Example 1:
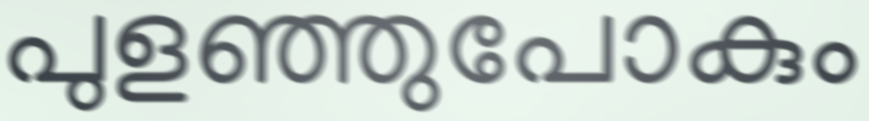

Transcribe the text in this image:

പുളഞ്ഞുപോകും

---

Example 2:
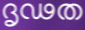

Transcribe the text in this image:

ദൃഢത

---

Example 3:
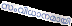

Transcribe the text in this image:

സംവിധാനമായി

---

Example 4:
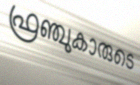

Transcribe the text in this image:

ഫ്രഞ്ചുകാരുടെ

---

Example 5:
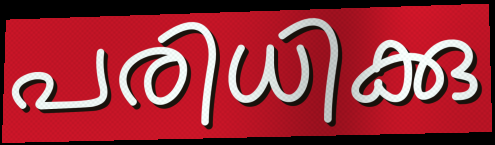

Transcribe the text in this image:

പരിധിക്കു